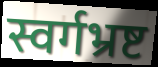
स्वर्गभ्रष्ट